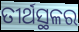
ତୀର୍ଥସ୍ଥଳର